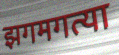
झगमगत्या